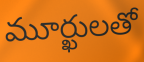
మూర్ఖులతో